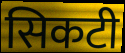
सिकटी